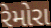
રેમોરા